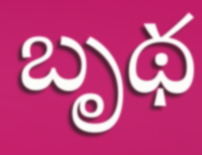
బృథ